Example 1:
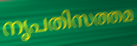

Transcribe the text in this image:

നൃപതിസത്തമ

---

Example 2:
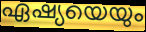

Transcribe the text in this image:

ഏഷ്യയെയും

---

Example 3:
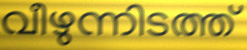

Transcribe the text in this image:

വീഴുന്നിടത്ത്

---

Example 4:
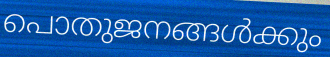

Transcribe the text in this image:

പൊതുജനങ്ങൾക്കും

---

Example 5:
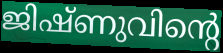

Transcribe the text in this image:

ജിഷ്ണുവിന്റെ